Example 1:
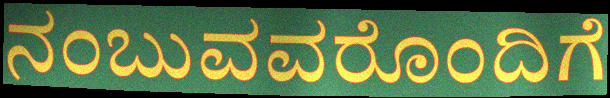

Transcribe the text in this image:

ನಂಬುವವರೊಂದಿಗೆ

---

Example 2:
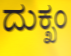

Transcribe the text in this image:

ದುಕ್ಖಂ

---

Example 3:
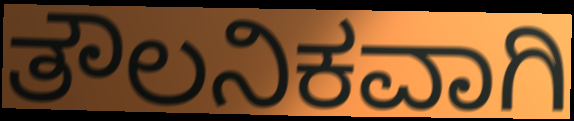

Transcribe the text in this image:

ತೌಲನಿಕವಾಗಿ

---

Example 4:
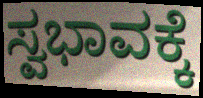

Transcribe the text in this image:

ಸ್ವಭಾವಕ್ಕೆ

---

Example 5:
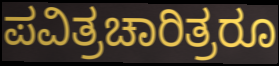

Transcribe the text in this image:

ಪವಿತ್ರಚಾರಿತ್ರರೂ